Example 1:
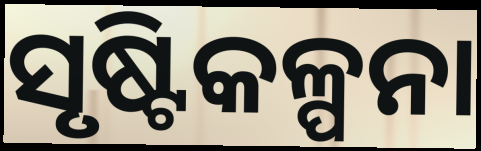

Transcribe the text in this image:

ସୃଷ୍ଟିକଳ୍ପନା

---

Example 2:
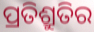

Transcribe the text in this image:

ପ୍ରତିଶ୍ରୁତିର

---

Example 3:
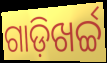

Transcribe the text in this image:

ଗାଡ଼ିଖର୍ଚ୍ଚ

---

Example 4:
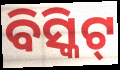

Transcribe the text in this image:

ବିସ୍କିଟ୍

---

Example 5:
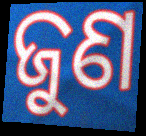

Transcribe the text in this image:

ଜୁଣ